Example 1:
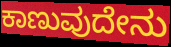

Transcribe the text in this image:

ಕಾಣುವುದೇನು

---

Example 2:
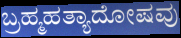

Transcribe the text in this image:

ಬ್ರಹ್ಮಹತ್ಯಾದೋಷವು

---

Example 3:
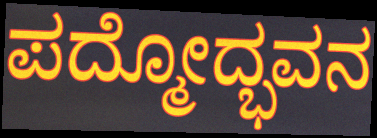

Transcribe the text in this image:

ಪದ್ಮೋದ್ಭವನ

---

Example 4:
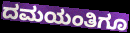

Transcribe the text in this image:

ದಮಯಂತಿಗೂ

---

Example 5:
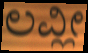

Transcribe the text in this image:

ಲವ್ಲೀ